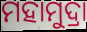
ମହାମୁଦ୍ରା